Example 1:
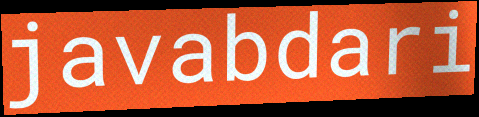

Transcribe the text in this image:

javabdari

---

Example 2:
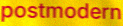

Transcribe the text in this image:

postmodern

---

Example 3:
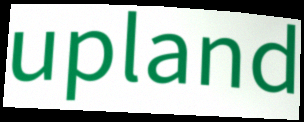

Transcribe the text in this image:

upland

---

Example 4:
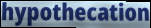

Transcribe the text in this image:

hypothecation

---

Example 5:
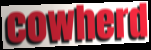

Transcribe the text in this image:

cowherd